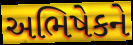
અભિષેકને